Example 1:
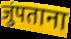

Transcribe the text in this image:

जुंपताना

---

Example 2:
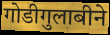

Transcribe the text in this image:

गोडीगुलाबीने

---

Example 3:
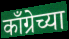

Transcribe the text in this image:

काँग्रेच्या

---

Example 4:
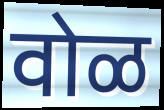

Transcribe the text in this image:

वोळ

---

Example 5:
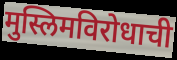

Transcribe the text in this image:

मुस्लिमविरोधाची